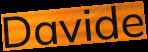
Davide